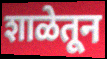
शाळेतून